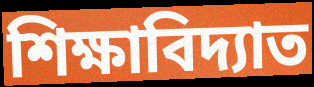
শিক্ষাবিদ্যাত